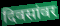
दिवसांवर